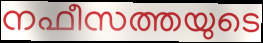
നഫീസത്തയുടെ